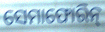
ସେମାଫୋରିନ୍